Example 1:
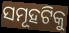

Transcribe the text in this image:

ସମୂହଟିକୁ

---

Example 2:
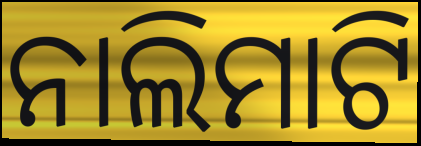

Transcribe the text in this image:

ନାଲିମାଟି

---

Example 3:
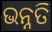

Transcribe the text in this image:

ଭନ୍ନତି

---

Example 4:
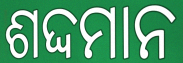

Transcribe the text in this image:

ଶଦ୍ଦମାନ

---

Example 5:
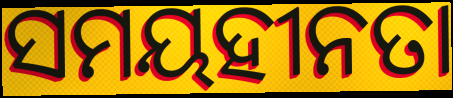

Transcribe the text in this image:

ସମୟହୀନତା